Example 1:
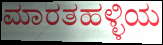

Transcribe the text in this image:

ಮಾರತಹಳ್ಳಿಯ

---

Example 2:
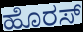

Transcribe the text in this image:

ಹೊರಸ್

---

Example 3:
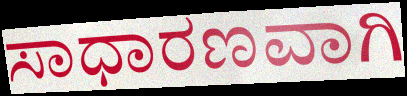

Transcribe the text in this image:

ಸಾಧಾರಣವಾಗಿ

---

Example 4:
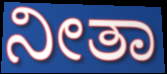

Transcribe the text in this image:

ನೀತಾ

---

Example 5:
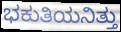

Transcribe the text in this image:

ಭಕುತಿಯನಿತ್ತು